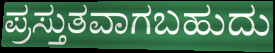
ಪ್ರಸ್ತುತವಾಗಬಹುದು